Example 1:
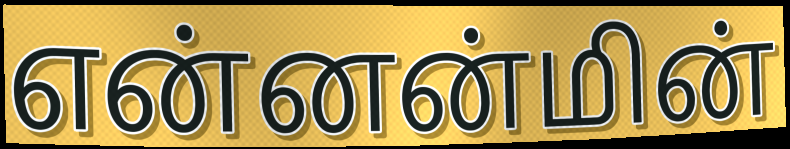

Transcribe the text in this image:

என்னன்மின்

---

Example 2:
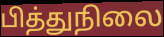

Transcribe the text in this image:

பித்துநிலை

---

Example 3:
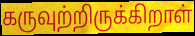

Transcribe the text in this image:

கருவுற்றிருக்கிறாள்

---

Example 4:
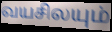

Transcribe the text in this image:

வயசிலயும்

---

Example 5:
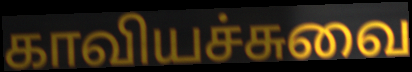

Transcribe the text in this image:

காவியச்சுவை